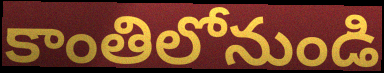
కాంతిలోనుండి